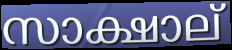
സാക്ഷാല്